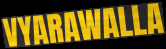
VYARAWALLA